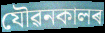
যৌৱনকালৰ